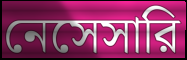
নেসেসারি